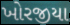
ખોરજીયા